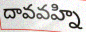
దావవహ్ని